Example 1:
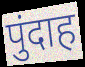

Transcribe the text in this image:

पुंदाह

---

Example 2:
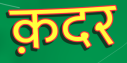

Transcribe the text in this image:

क़दर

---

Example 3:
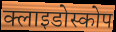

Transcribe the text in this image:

क्लाइडोस्कोप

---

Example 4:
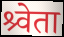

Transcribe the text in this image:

श्र्वेता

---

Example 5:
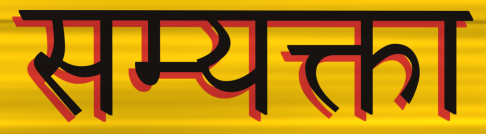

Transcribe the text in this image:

सम्यक्ता